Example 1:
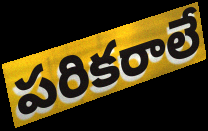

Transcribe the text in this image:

పరికరాలే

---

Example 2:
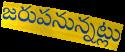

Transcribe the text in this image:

జరుపనున్నట్లు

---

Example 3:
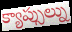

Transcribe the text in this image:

క్యాప్సుల్ను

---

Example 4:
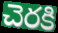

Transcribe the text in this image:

చెరకి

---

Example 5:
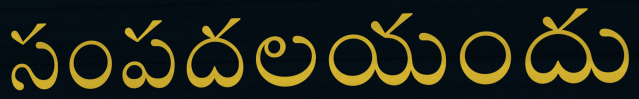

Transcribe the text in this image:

సంపదలయందు